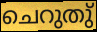
ചെറുതു്